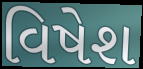
વિષેશ